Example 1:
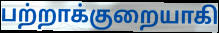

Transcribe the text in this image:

பற்றாக்குறையாகி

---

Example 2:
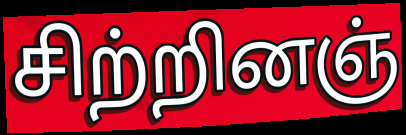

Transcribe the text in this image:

சிற்றினஞ்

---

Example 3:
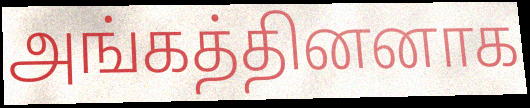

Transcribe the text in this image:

அங்கத்தினனாக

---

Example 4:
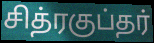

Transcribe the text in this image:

சித்ரகுப்தர்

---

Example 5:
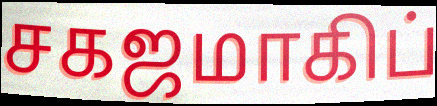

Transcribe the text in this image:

சகஜமாகிப்